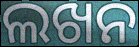
ଲଖନ